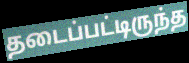
தடைப்பட்டிருந்த